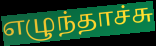
எழுந்தாச்சு